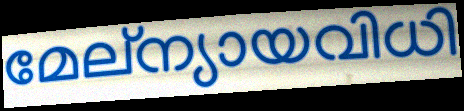
മേല്ന്യായവിധി